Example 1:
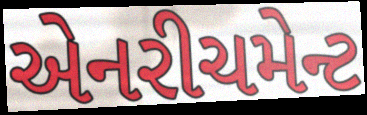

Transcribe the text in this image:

એનરીચમેન્ટ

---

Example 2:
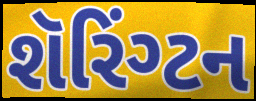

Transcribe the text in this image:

શૅરિંગ્ટન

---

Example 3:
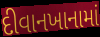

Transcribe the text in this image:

દીવાનખાનામાં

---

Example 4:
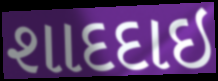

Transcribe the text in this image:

શાદદાઇ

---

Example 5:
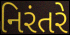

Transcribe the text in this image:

નિરંતરે